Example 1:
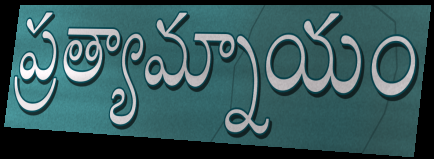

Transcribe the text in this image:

ప్రత్యామ్నాయం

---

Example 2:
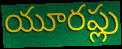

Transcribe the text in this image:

యూరప్లు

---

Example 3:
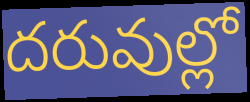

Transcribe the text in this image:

దరువుల్లో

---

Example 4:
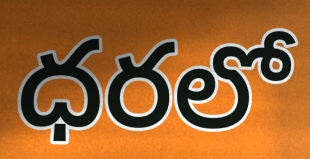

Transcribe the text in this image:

ధరలో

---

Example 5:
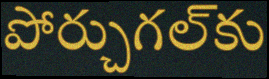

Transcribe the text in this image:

పోర్చుగల్‌కు